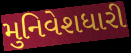
મુનિવેશધારી